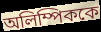
অলিম্পিককে